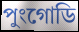
পুংগোডি